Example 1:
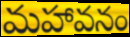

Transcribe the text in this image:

మహావనం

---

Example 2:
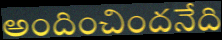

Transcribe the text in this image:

అందించిందనేది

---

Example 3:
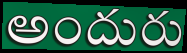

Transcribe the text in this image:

అందురు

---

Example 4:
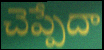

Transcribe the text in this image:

చెప్పేదా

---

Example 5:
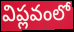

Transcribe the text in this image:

విప్లవంలో